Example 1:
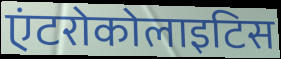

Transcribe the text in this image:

एंटरोकोलाइटिस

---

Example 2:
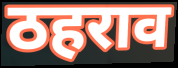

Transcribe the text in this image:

ठहराव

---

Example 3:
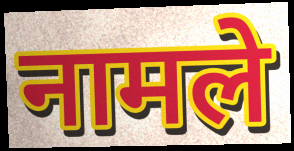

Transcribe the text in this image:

नामले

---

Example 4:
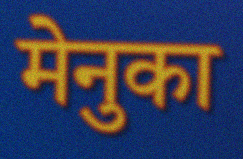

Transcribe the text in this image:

मेनुका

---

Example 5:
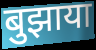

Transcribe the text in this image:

बुझाया